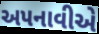
અપનાવીએ